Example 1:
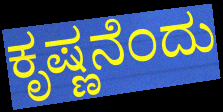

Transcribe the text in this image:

ಕೃಷ್ಣನೆಂದು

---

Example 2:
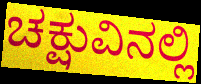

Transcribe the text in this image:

ಚಕ್ಷುವಿನಲ್ಲಿ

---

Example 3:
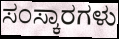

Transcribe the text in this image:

ಸಂಸ್ಕಾರಗಳು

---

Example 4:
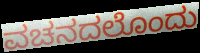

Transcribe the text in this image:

ವಚನದಲೊಂದು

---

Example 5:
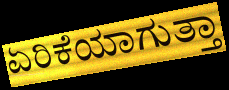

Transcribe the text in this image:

ಏರಿಕೆಯಾಗುತ್ತಾ